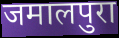
जमालपुरा